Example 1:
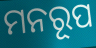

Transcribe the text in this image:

ମନରୂପ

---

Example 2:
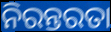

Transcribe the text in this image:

ନିରନ୍ତରତା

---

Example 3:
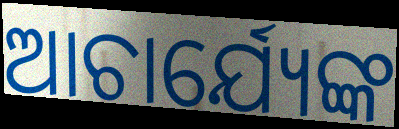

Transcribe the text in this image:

ଆଚାର୍ଯ୍ୟେଙ୍କ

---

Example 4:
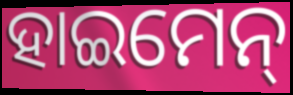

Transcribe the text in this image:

ହାଇମେନ୍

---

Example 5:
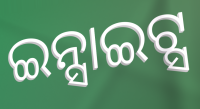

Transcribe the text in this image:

ଇନ୍ସାଇଟ୍ସ